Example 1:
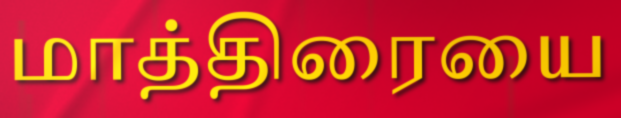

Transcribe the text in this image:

மாத்திரையை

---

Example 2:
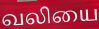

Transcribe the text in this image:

வலியை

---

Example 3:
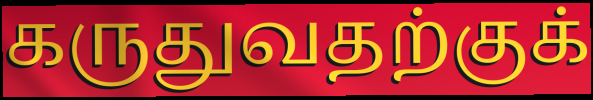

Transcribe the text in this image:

கருதுவதற்குக்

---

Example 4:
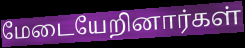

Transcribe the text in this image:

மேடையேறினார்கள்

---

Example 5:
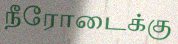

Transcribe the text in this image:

நீரோடைக்கு